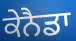
ਕੇਨੈਡਾ